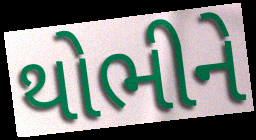
થોભીને